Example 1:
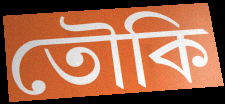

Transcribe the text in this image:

তৌকি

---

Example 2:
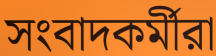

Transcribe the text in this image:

সংবাদকর্মীরা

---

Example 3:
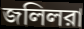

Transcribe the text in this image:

জলিলরা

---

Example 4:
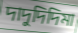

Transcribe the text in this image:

দাদুদিদিমা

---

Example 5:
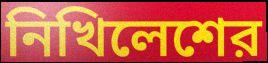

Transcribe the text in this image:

নিখিলেশের